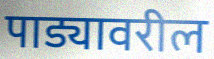
पाड्यावरील